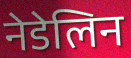
नेडेलिन